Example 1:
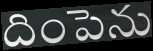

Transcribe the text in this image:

దింపెను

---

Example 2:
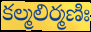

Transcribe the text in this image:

కల్మలిర్మణిః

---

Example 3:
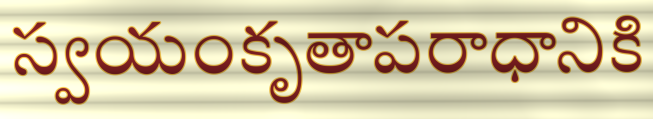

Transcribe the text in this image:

స్వయంకృతాపరాధానికి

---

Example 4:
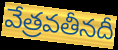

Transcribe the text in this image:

వేత్రవతీనదీ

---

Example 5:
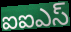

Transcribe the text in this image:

ఐఐఎస్